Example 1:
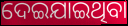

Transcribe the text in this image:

ଦେଇଯାଇଥିବା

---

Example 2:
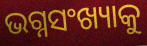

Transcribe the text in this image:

ଭଗ୍ନସଂଖ୍ୟାକୁ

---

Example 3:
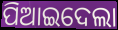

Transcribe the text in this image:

ପିଆଇଦେଲା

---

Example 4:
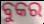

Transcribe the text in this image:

ବୁକର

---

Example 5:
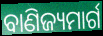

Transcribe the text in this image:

ବାଣିଜ୍ୟମାର୍ଗ